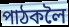
পাঠকলৈ